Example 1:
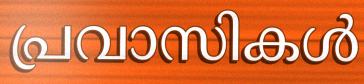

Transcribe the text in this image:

പ്രവാസികൾ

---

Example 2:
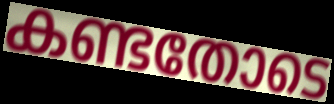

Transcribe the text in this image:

കണ്ടതോടെ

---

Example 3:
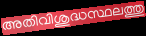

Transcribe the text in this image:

അതിവിശുദ്ധസ്ഥലത്തു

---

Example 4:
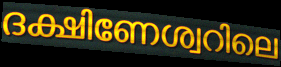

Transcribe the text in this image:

ദക്ഷിണേശ്വറിലെ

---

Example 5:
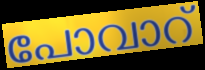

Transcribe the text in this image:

പോവാറ്